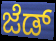
ಜೆಡ್